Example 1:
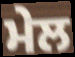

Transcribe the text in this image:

ਮੇਲ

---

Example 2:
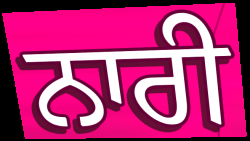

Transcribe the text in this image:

ਨਾਰੀ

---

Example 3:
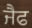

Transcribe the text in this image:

ਜੈਫ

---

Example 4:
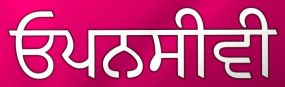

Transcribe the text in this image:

ਓਪਨਸੀਵੀ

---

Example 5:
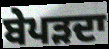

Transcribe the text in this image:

ਬੇਪੜਦਾ